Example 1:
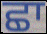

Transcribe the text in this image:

ਛਾ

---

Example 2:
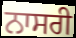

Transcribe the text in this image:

ਨਾਸਰੀ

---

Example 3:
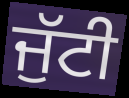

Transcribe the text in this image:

ਜੁੱਟੀ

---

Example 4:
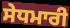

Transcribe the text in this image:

ਸੇਧਮਾਰੀ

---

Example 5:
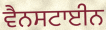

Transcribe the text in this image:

ਵੈਨਸਟਾਈਨ